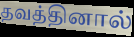
தவத்தினால்